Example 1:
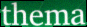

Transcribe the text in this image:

thema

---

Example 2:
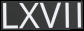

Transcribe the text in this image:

LXVII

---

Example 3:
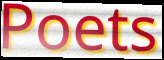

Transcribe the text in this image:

Poets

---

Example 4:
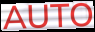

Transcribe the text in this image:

AUTO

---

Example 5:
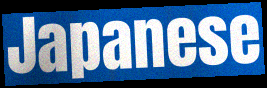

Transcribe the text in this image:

Japanese